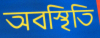
অবস্থিতি